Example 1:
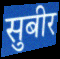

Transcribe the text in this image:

सुबीर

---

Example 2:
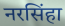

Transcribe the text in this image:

नरसिंहा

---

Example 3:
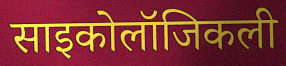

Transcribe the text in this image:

साइकोलॉजिकली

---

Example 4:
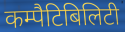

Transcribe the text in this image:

कम्पैटिबिलिटी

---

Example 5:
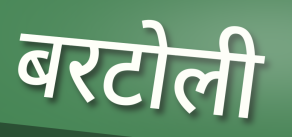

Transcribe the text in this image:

बरटोली